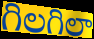
గిలగిలా